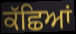
ਕੱਛਿਆਂ